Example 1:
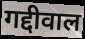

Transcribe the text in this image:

गद्दीवाल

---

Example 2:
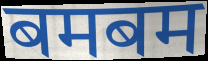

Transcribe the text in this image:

बमबम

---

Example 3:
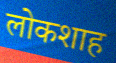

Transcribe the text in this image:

लोकशाह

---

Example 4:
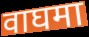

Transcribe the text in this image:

वाघमा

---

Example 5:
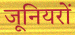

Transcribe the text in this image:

जूनियरों